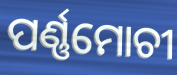
ପର୍ଣ୍ଣମୋଚୀ